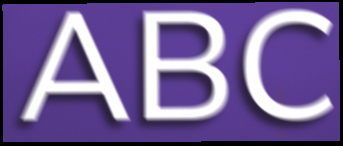
ABC